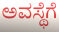
ಅವಸ್ಥೆಗೆ